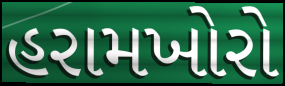
હરામખોરો